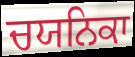
ਚਯਨਿਕਾ